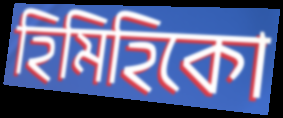
হিমিহিকো